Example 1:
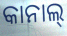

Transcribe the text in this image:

କାନାଲ୍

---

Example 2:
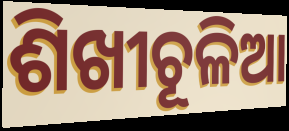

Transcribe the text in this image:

ଶିଖୀଚୂଳିଆ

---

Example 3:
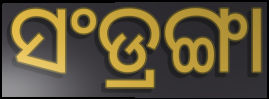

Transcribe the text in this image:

ସଂଡ୍ରଙ୍ଗା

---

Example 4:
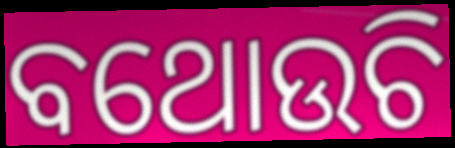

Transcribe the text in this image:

ବଥୋଉଚି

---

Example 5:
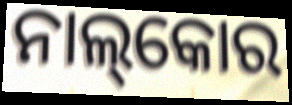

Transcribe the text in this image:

ନାଲ୍‌କୋର